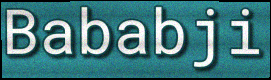
Bababji